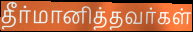
தீர்மானித்தவர்கள்